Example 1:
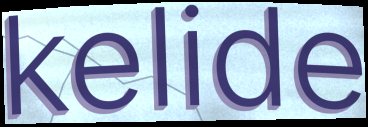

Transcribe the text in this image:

kelide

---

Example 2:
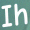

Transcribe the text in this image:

Ih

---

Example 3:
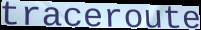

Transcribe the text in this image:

traceroute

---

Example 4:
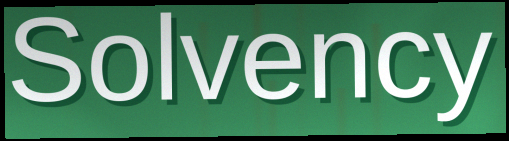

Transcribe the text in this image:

Solvency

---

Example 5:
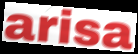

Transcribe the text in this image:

arisa